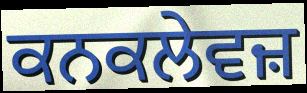
ਕਨਕਲੇਵਜ਼